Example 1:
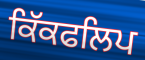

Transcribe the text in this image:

ਕਿੱਕਫਲਿਪ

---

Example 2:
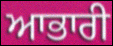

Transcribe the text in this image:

ਆਭਾਰੀ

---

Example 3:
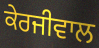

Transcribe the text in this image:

ਕੇਰਜੀਵਾਲ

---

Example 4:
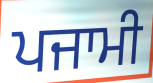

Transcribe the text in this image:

ਪਜਾਮੀ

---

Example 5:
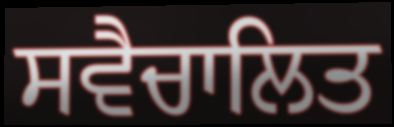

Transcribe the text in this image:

ਸਵੈਚਾਲਿਤ